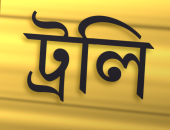
ট্রলি